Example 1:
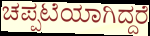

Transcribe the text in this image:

ಚಪ್ಪಟೆಯಾಗಿದ್ದರೆ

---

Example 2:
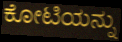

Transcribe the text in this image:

ಕೋಟಿಯನ್ನು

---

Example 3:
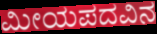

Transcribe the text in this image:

ಮೀಯಪದವಿನ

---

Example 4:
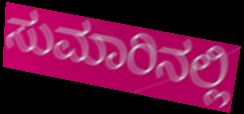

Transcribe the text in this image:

ಸುಮಾರಿನಲ್ಲಿ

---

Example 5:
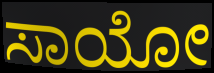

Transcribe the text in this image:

ಸಾಯೋ